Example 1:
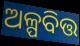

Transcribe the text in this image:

ଅଳ୍ପବିତ୍ତ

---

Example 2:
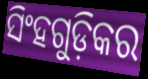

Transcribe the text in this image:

ସିଂହଗୁଡ଼ିକର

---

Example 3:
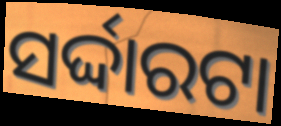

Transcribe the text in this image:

ସର୍ଦ୍ଦାରଟା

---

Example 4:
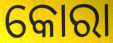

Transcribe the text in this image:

କୋରା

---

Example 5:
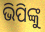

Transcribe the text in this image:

ଭିପିଙ୍କୁ